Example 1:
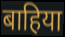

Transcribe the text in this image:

बाहिया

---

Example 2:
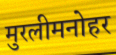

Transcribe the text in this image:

मुरलीमनोहर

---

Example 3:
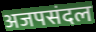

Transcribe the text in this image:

अजपसंदल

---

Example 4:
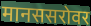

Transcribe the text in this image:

मानससरोवर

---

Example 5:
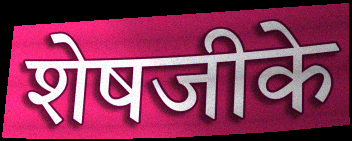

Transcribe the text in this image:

शेषजीके